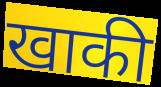
खाकी